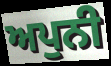
ਅਪੁਨੀ